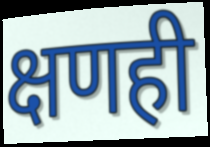
क्षणही